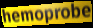
hemoprobe